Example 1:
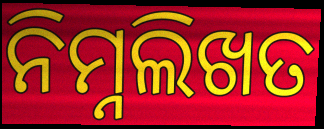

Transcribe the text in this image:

ନିମ୍ନଲିଖତ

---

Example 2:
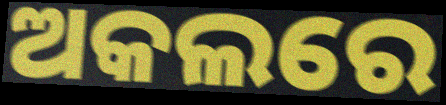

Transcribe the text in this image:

ଅକଲରେ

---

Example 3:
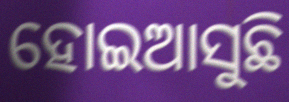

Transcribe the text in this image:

ହୋଇଆସୁଛି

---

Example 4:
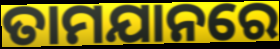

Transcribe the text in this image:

ତାମଯାନରେ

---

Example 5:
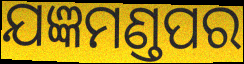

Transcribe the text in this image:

ଯଜ୍ଞମଣ୍ଡପର